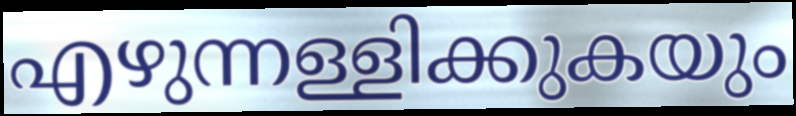
എഴുന്നള്ളിക്കുകയും